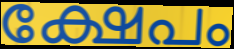
ക്ഷേപം